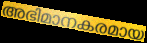
അഭിമാനകരമായ